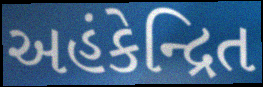
અહંકેન્દ્રિત